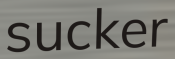
sucker